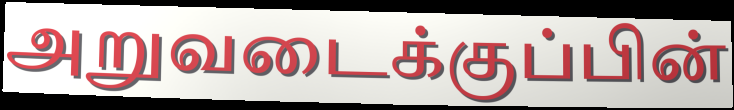
அறுவடைக்குப்பின்